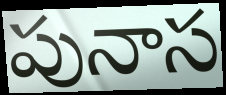
పునాస